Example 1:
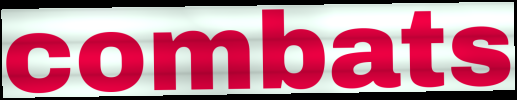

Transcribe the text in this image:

combats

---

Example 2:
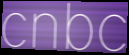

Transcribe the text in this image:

cnbc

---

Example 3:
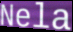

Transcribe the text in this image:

Nela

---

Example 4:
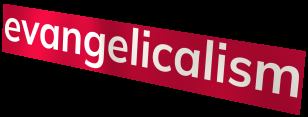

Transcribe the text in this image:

evangelicalism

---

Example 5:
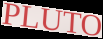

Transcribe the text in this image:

PLUTO